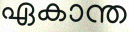
ഏകാന്ത